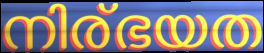
നിര്ഭയത